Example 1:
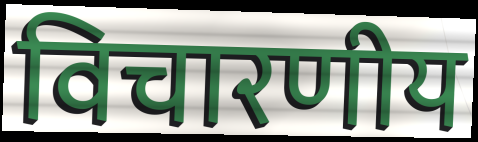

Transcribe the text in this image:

विचारणीय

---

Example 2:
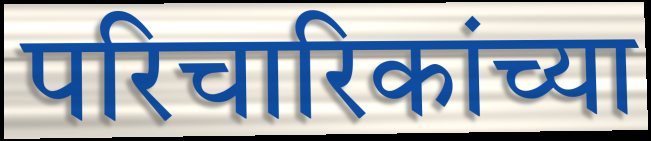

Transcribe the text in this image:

परिचारिकांच्या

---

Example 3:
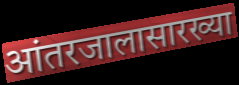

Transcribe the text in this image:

आंतरजालासारख्या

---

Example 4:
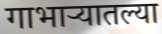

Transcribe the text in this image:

गाभाऱ्यातल्या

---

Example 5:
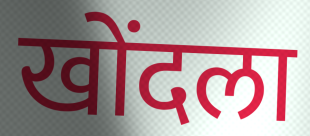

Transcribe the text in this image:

खोंदला